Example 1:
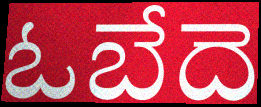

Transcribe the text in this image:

ఓబేదె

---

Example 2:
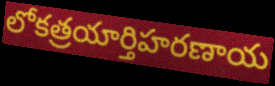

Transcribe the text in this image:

లోకత్రయార్తిహరణాయ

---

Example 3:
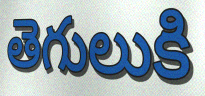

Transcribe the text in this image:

తెగులుకి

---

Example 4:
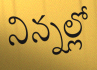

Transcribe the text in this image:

నిన్నల్లో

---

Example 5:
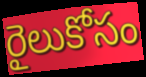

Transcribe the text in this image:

రైలుకోసం